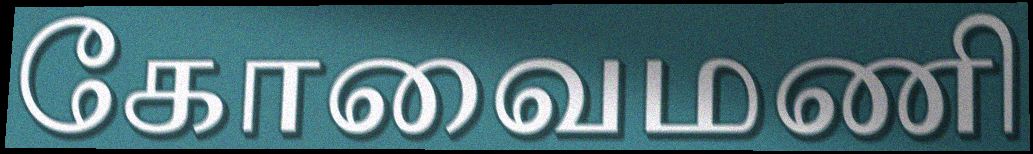
கோவைமணி